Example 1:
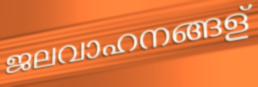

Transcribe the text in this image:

ജലവാഹനങ്ങള്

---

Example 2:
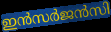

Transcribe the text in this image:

ഇൻസർജൻസി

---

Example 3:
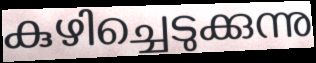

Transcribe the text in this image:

കുഴിച്ചെടുക്കുന്നു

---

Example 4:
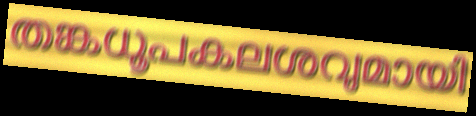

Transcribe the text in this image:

തങ്കധൂപകലശവുമായി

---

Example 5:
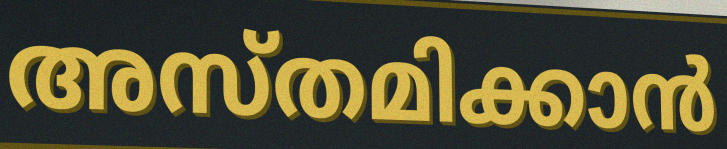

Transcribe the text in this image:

അസ്തമിക്കാൻ